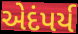
એદંપર્ય